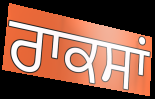
ਰਾਕਸਾਂ